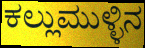
ಕಲ್ಲುಮುಳ್ಳಿನ